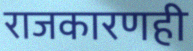
राजकारणही